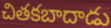
చితకబాదాడు